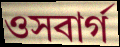
ওসবার্গ